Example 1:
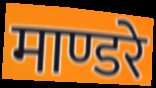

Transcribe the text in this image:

माण्डरे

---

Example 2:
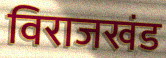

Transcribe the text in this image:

विराजखंड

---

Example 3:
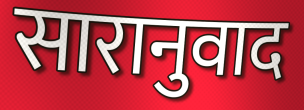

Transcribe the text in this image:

सारानुवाद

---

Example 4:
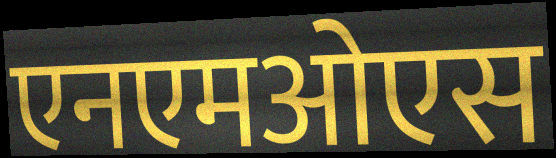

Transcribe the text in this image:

एनएमओएस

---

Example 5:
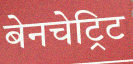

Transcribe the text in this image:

बेनचेट्रिट